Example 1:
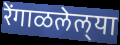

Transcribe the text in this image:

रेंगाळलेल्या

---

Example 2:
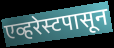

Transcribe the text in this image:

एव्हरेस्टपासून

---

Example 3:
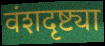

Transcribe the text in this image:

वंशदृष्ट्या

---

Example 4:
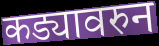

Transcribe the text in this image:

कड्यावरुन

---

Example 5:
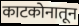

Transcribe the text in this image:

काटकोनातून